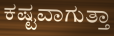
ಕಷ್ಟವಾಗುತ್ತಾ